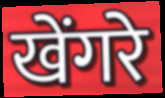
खेंगरे